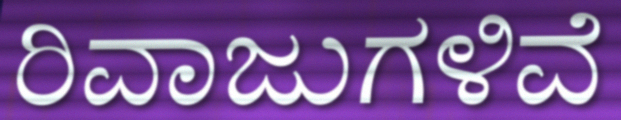
ರಿವಾಜುಗಳಿವೆ